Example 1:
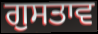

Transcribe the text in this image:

ਗੁਸਤਾਵ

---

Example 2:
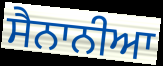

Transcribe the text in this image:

ਸੈਨਾਨੀਆ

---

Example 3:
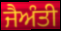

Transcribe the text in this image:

ਜੈਅੰਤੀ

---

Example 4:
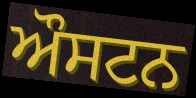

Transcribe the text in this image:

ਔਸਟਨ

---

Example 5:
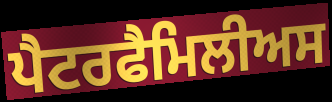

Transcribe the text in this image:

ਪੈਟਰਫੈਮਿਲੀਅਸ